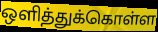
ஒளித்துக்கொள்ள